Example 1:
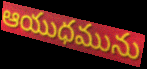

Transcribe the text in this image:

ఆయుధమును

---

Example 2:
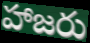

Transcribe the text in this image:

హాజరు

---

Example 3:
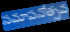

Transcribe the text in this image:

సమాపనోత్సవ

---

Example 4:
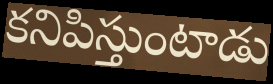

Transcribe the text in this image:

కనిపిస్తుంటాడు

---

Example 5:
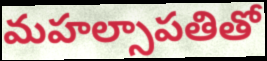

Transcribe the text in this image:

మహల్సాపతితో